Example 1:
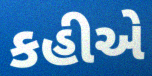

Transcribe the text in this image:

કહીએ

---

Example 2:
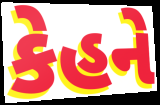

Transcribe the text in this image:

કેહને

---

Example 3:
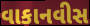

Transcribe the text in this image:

વાકાનવીસ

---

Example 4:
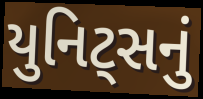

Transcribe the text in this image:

યુનિટ્સનું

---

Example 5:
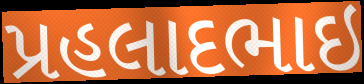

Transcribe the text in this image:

પ્રહલાદભાઇ